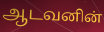
ஆடவனின்